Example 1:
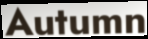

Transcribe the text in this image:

Autumn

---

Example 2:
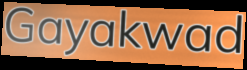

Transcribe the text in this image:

Gayakwad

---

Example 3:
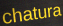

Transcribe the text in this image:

chatura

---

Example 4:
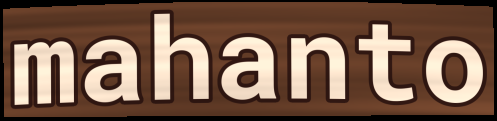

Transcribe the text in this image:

mahanto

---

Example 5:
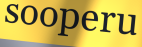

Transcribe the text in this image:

sooperu